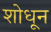
शोधून